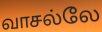
வாசல்லே